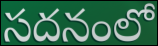
సదనంలో